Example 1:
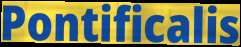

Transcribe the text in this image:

Pontificalis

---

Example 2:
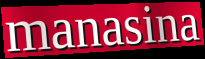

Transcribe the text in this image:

manasina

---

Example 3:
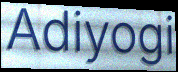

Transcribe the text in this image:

Adiyogi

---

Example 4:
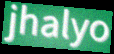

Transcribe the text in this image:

jhalyo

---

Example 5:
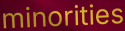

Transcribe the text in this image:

minorities